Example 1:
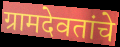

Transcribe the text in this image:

ग्रामदेवतांचे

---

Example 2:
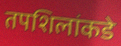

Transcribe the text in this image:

तपशिलांकडे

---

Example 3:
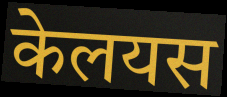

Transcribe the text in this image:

केलयस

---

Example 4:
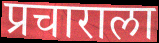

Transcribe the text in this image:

प्रचाराला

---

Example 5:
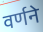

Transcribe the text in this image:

वर्णने